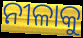
ନୀଳାକୁ